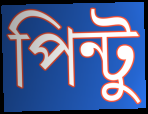
পিন্টু